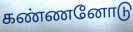
கண்ணனோடு